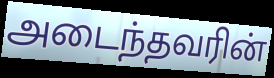
அடைந்தவரின்